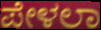
ಪೇಳಲಾ